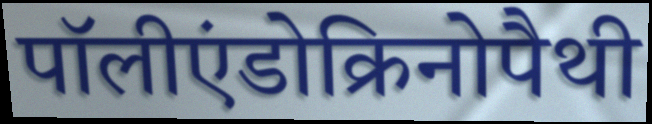
पॉलीएंडोक्रिनोपैथी